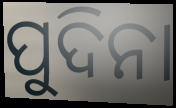
ପୁଦିନା